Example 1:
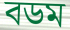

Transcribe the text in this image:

বডম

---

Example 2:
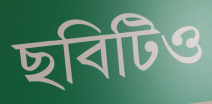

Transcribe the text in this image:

ছবিটিও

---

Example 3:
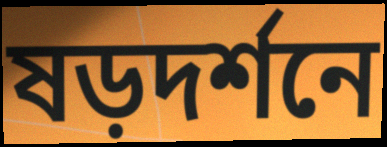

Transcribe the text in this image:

ষড়দর্শনে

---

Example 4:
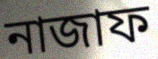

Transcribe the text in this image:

নাজাফ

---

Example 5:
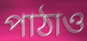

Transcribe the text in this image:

পাঠাও